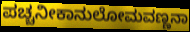
ಪಚ್ಚನೀಕಾನುಲೋಮವಣ್ಣನಾ